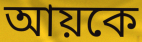
আয়কে